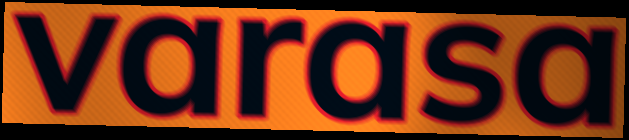
varasa